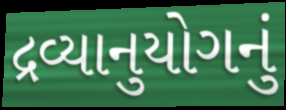
દ્રવ્યાનુયોગનું